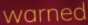
warned